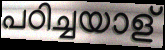
പഠിച്ചയാള്